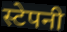
स्टेपनी